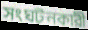
সংঘটনকারী